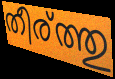
തീര്ത്തു